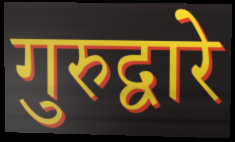
गुरुद्वारे